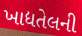
ખાદ્યતેલની